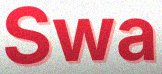
Swa